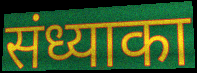
संध्याका